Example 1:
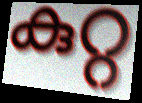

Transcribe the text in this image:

കുറ്റ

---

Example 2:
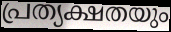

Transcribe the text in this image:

പ്രത്യക്ഷതയും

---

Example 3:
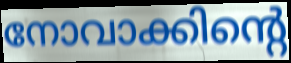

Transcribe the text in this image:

നോവാക്കിന്റെ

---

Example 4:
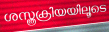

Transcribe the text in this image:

ശസ്ത്രക്രിയയിലൂടെ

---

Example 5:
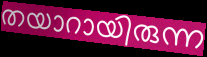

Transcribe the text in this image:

തയാറായിരുന്ന